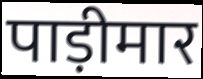
पाड़ीमार